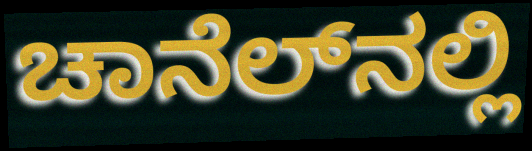
ಚಾನೆಲ್‌ನಲ್ಲಿ